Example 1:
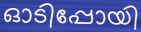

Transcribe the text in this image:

ഓടിപ്പോയി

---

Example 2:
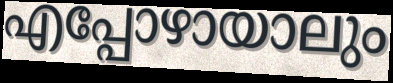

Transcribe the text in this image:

എപ്പോഴായാലും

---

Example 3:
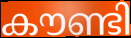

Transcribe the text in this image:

കൗണ്ടി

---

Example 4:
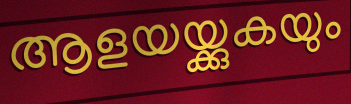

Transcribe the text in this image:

ആളയയ്ക്കുകയും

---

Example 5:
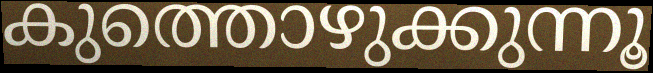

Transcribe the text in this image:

കുത്തൊഴുക്കുന്നൂ